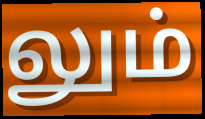
லும்